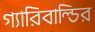
গ্যারিবাল্ডির